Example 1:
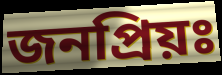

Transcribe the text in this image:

জনপ্রিয়ঃ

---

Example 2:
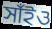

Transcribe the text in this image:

সাঁইও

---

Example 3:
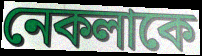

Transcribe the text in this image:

নেকলাকে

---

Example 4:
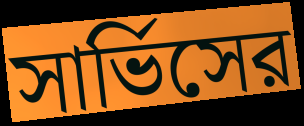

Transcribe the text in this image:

সার্ভিসের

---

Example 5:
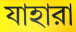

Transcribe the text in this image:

যাহারা